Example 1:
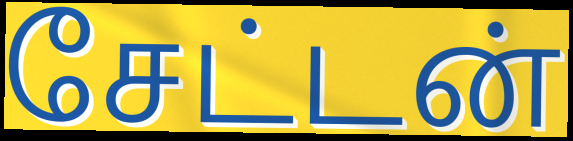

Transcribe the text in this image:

சேட்டன்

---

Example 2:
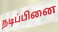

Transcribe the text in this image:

நடிப்பினை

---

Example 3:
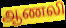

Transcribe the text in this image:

ஆணலி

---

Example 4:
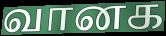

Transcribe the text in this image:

வானக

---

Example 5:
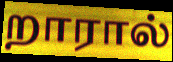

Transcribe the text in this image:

றாரால்